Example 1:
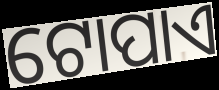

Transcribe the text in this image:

ଟୋପାଏ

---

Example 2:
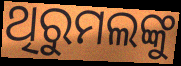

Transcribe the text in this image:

ଥିରୁମଲଙ୍କୁ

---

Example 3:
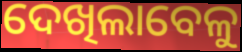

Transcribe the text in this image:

ଦେଖିଲାବେଳୁ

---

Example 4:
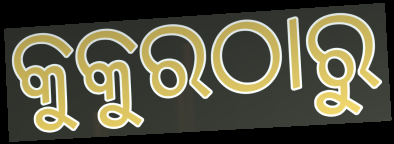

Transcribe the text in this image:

କୁକୁରଠାରୁ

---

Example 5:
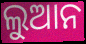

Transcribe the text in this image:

ଲୁଆନ